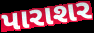
પારાશર